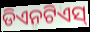
ଡିଏନଟିଏସ୍